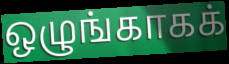
ஒழுங்காகக்